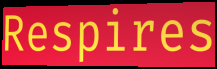
Respires